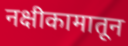
नक्षीकामातून